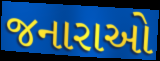
જનારાઓ